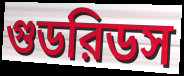
গুডরিডস